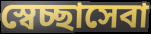
স্বেচ্ছাসেবা